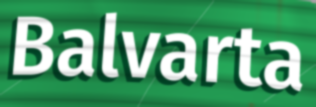
Balvarta